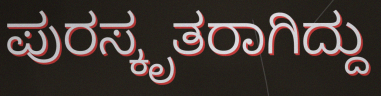
ಪುರಸ್ಕೃತರಾಗಿದ್ದು